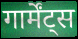
गार्मेंट्स